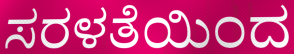
ಸರಳತೆಯಿಂದ